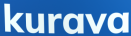
kurava